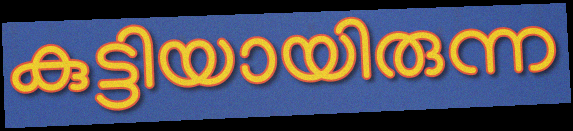
കുട്ടിയായിരുന്ന